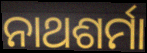
ନାଥଶର୍ମା